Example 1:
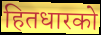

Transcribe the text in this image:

हितधारको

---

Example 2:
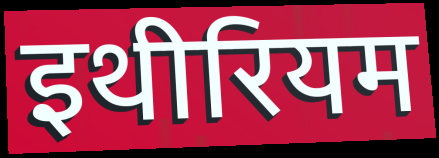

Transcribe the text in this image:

इथीरियम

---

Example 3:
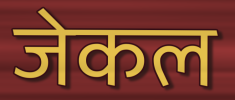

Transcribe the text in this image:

जेकल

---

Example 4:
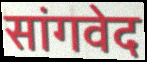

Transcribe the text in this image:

सांगवेद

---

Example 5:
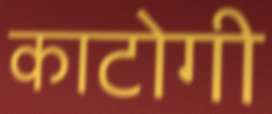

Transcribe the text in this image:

काटोगी